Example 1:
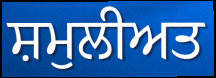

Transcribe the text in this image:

ਸ਼ਮੁਲੀਅਤ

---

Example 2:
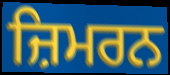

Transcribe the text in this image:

ਜ਼ਿਮਰਨ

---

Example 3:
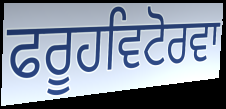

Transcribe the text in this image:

ਫਰੂਹਵਿਟੋਰਵਾ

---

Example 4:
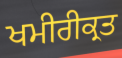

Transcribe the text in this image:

ਖਮੀਰੀਕ੍ਰਤ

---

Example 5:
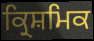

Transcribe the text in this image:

ਕ੍ਰਿਸ਼ਮਿਕ